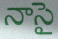
నాసై